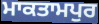
ਮਾਕਤਾਮਪੁਰ